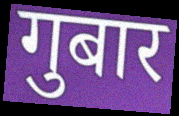
गुबार